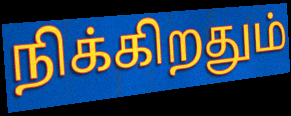
நிக்கிறதும்